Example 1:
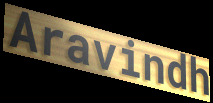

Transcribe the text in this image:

Aravindh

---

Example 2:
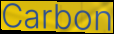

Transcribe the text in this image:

Carbon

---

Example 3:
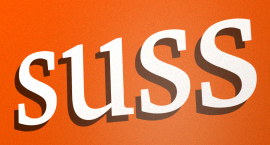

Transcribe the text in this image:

suss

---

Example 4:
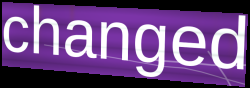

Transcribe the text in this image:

changed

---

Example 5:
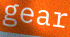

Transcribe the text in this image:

gear